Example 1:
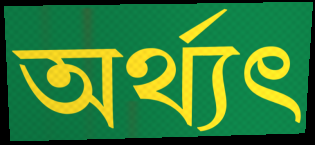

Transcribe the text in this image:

অর্থ্যৎ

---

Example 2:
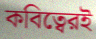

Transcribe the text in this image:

কবিত্বেরই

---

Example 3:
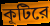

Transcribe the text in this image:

কূটিরে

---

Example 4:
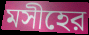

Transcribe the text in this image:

মসীহের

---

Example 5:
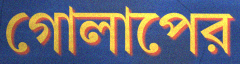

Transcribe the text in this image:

গোলাপের